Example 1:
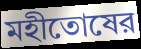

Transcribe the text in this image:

মহীতোষের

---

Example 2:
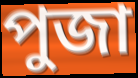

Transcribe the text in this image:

পুজা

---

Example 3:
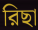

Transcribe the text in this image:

রিছা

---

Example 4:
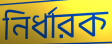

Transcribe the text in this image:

নির্ধারক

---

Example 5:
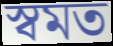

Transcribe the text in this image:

স্বমত